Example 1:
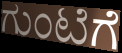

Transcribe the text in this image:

ಗುಂಟೆಗೆ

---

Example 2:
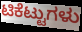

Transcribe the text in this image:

ಟಿಕೆಟ್ಟುಗಳು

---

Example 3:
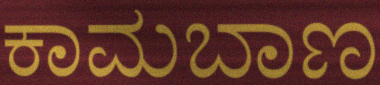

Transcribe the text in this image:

ಕಾಮಬಾಣ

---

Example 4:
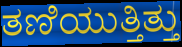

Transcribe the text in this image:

ತಣಿಯುತ್ತಿತ್ತು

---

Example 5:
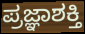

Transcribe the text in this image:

ಪ್ರಜ್ಞಾಶಕ್ತಿ